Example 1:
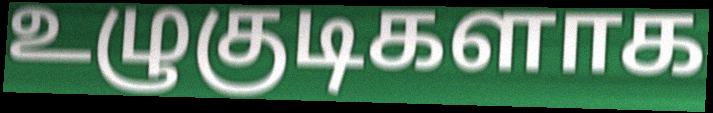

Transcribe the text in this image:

உழுகுடிகளாக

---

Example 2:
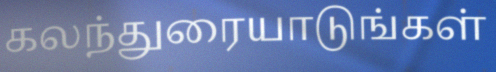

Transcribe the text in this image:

கலந்துரையாடுங்கள்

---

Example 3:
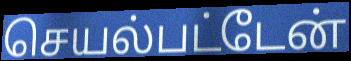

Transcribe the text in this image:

செயல்பட்டேன்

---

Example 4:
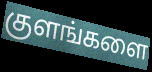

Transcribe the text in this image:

குளங்களை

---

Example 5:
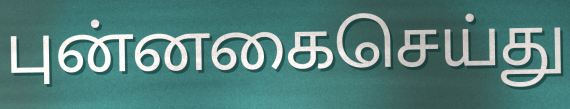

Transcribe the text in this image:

புன்னகைசெய்து